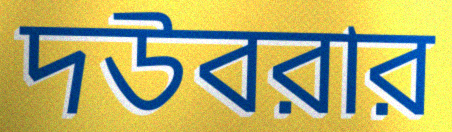
দউবরার